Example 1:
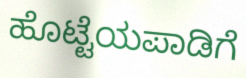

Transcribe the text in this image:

ಹೊಟ್ಟೆಯಪಾಡಿಗೆ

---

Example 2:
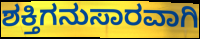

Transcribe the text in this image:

ಶಕ್ತಿಗನುಸಾರವಾಗಿ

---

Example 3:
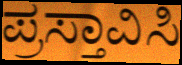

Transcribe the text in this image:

ಪ್ರಸ್ತಾವಿಸಿ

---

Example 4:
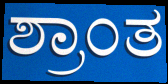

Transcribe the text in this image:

ಶ್ರಾಂತ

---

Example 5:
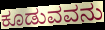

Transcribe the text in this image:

ಕೂಡುವವನು